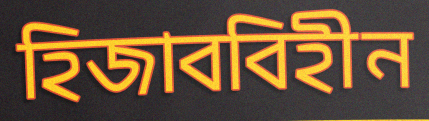
হিজাববিহীন